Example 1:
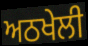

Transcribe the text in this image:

ਅਠਖੇਲੀ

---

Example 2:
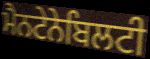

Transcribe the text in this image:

ਮੈਨਟੇਨੇਬਿਲਟੀ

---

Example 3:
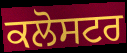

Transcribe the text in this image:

ਕਲੋਸਟਰ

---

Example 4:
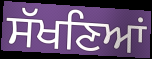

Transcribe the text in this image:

ਸੱਖਣਿਆਂ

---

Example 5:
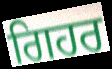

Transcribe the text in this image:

ਗਿਹਰ